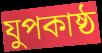
যুপকাষ্ঠ